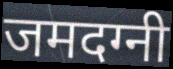
जमदग्नी